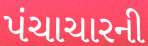
પંચાચારની